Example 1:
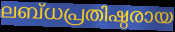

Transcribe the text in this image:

ലബ്ധപ്രതിഷ്ഠരായ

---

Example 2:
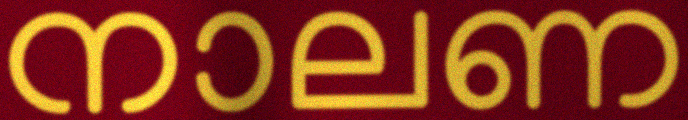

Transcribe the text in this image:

നാലണ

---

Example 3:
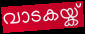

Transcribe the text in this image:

വാടകയ്ക്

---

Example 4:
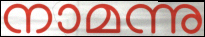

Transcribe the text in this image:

നാമന്നു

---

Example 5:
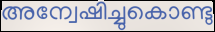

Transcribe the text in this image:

അന്വേഷിച്ചുകൊണ്ടു